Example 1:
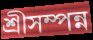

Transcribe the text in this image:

শ্রীসম্পন্ন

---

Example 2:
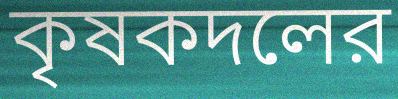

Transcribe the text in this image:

কৃষকদলের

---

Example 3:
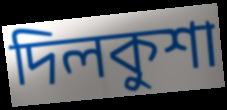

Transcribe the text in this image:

দিলকুশা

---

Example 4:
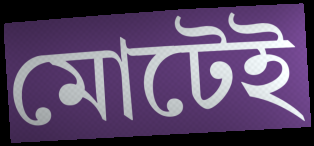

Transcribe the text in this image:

মোটেই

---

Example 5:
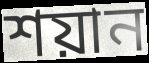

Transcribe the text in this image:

শয়ান